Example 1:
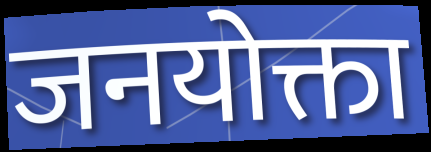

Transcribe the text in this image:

जनयोक्ता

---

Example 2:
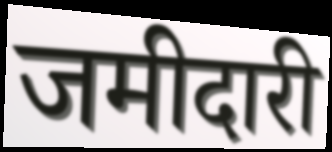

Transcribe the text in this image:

जमीदारी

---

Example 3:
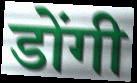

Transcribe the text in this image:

डोंगी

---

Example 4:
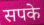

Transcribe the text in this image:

सपके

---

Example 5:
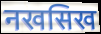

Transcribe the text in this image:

नखसिख